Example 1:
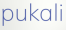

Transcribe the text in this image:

pukali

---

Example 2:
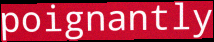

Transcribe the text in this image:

poignantly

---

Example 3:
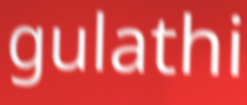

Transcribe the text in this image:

gulathi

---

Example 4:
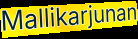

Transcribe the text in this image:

Mallikarjunan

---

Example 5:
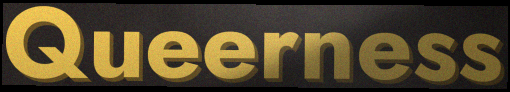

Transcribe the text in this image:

Queerness